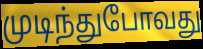
முடிந்துபோவது